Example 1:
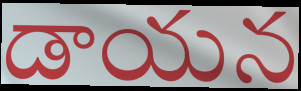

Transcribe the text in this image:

డాయన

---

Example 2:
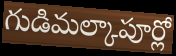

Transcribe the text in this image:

గుడిమల్కాపూర్లో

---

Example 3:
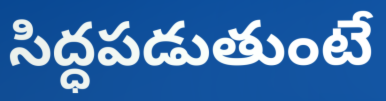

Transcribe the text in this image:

సిద్ధపడుతుంటే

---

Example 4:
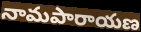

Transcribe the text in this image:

నామపారాయణ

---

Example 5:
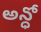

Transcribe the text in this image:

అన్ధో